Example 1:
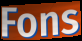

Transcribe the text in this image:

Fons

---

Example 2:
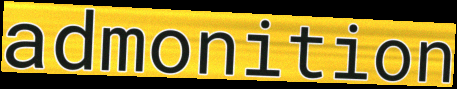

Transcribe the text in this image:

admonition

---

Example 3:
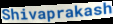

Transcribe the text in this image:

Shivaprakash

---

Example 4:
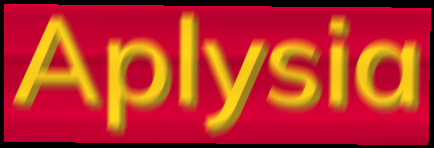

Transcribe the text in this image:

Aplysia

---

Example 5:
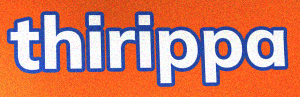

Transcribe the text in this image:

thirippa